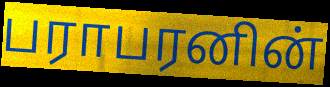
பராபரனின்